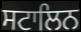
ਸਟਾਲਿਨ